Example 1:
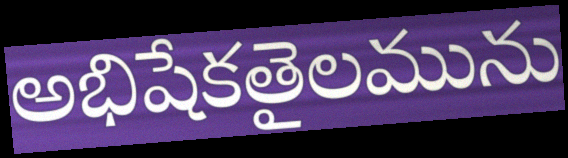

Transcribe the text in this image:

అభిషేకతైలమును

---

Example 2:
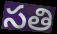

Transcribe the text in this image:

సతి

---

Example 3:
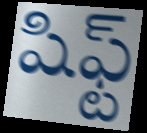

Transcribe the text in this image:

షిఫ్ట్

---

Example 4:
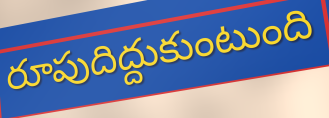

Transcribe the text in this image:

రూపుదిద్దుకుంటుంది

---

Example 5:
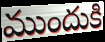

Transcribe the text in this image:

ముందుకి